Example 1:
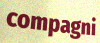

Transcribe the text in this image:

compagni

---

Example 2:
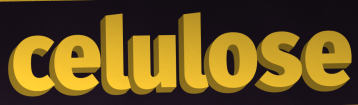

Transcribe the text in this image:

celulose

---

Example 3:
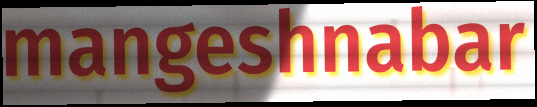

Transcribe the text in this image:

mangeshnabar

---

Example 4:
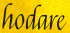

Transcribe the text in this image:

hodare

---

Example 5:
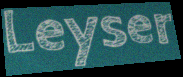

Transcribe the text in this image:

Leyser